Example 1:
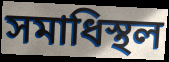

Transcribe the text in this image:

সমাধিস্থল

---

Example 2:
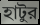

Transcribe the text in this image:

হাটুর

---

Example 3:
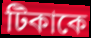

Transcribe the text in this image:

টিকাকে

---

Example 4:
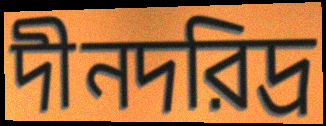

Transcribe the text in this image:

দীনদরিদ্র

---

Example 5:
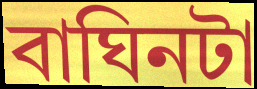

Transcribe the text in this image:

বাঘিনটা